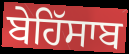
ਬੇਹਿੱਸਾਬ